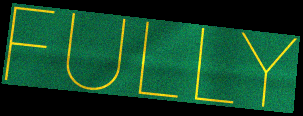
FULLY